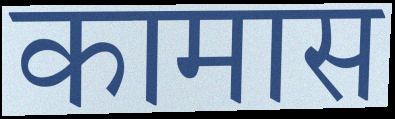
कामास